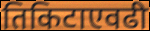
तिकिटाएवढी